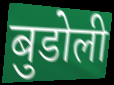
बुडोली